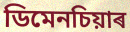
ডিমেনচিয়াৰ